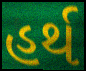
હર્થ